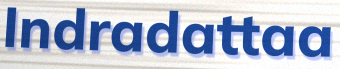
Indradattaa